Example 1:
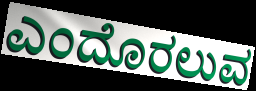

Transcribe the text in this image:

ಎಂದೊರಲುವ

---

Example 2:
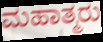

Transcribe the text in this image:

ಮಹಾತ್ಮರು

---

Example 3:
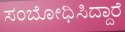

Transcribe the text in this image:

ಸಂಬೋಧಿಸಿದ್ದಾರೆ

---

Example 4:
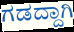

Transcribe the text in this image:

ಗಡದ್ದಾಗಿ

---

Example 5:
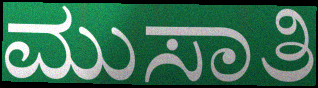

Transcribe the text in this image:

ಮುಸಾತಿ